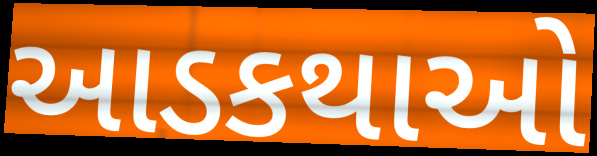
આડકથાઓ